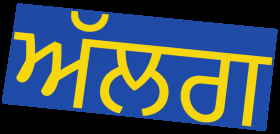
ਅੱਲਗ